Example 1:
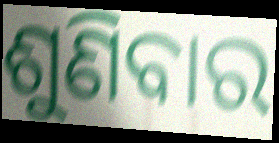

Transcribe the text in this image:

ଶୁଣିବାର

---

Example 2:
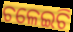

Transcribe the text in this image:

ଚଳେଇଚି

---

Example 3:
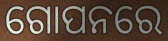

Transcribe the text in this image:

ଗୋପନରେ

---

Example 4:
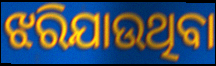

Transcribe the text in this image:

ଝରିଯାଉଥିବା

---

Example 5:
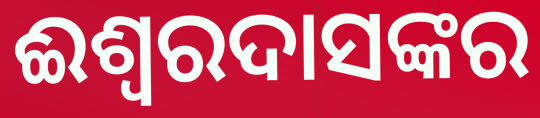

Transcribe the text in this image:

ଈଶ୍ଵରଦାସଙ୍କର